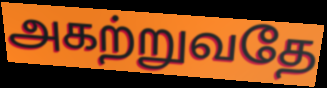
அகற்றுவதே